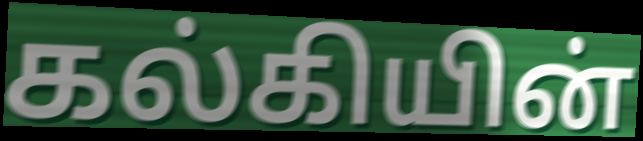
கல்கியின்